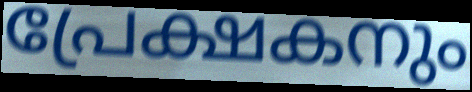
പ്രേക്ഷകനും